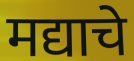
मद्याचे